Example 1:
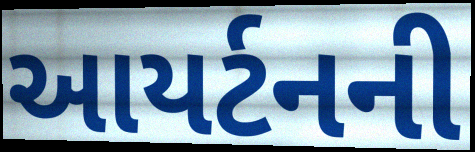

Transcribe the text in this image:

આયર્ટનની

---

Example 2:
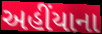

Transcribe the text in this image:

અહીંયાના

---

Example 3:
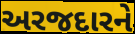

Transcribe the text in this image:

અરજદારને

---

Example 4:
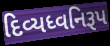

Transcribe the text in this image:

દિવ્યધ્વનિરૂપ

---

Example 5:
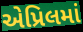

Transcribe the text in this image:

એપ્રિલમાં